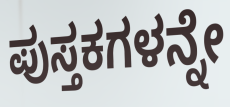
ಪುಸ್ತಕಗಳನ್ನೇ